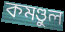
কমণ্ডুল